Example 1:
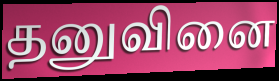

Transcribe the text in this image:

தனுவினை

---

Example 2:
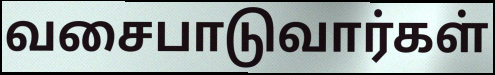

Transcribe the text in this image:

வசைபாடுவார்கள்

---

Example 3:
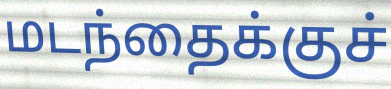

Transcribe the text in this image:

மடந்தைக்குச்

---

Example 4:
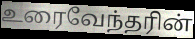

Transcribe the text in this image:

உரைவேந்தரின்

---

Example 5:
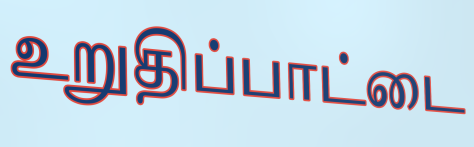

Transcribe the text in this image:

உறுதிப்பாட்டை